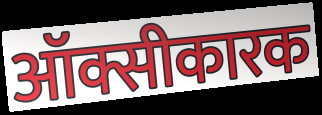
ऑक्सीकारक